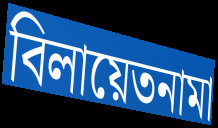
বিলায়েতনামা